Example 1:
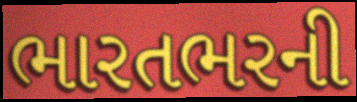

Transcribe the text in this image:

ભારતભરની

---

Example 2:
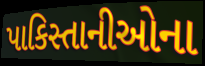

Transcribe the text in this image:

પાકિસ્તાનીઓના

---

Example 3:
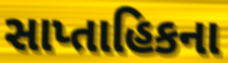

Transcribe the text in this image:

સાપ્તાહિકના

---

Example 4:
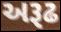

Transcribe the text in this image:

અરૂઢ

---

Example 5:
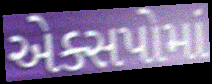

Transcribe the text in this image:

એક્સપોમાં